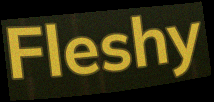
Fleshy